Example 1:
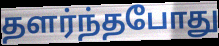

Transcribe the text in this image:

தளர்ந்தபோது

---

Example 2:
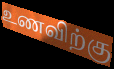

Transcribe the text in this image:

உணவிற்கு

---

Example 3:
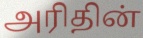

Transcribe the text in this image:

அரிதின்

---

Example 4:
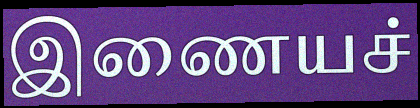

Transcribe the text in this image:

இணையச்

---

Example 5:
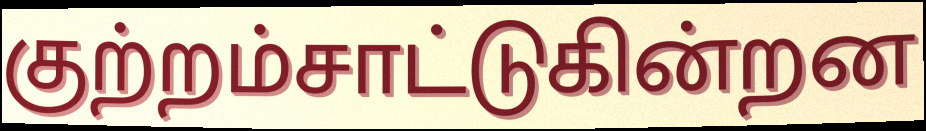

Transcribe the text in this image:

குற்றம்சாட்டுகின்றன